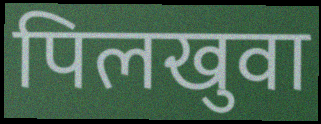
पिलखुवा